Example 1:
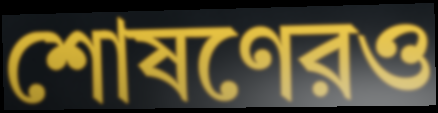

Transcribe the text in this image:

শোষণেরও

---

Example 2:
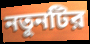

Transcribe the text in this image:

নতুনটির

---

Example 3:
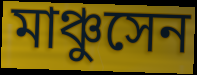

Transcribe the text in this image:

মাঞ্চুসেন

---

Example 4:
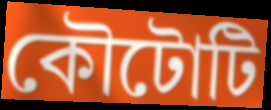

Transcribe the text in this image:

কৌটোটি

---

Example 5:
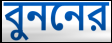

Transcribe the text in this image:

বুননের